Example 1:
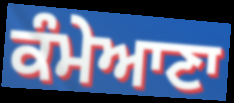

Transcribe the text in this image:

ਕੰਮੇਆਣਾ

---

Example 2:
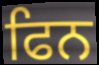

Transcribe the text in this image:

ਫਿਨ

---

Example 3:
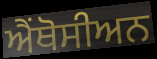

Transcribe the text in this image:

ਐਂਥੋਸੀਅਨ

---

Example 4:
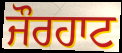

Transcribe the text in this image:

ਜੌਰਹਾਟ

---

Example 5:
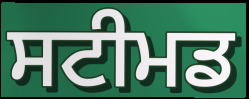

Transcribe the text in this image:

ਸਟੀਮਡ